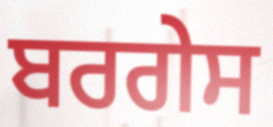
ਬਰਗੇਸ